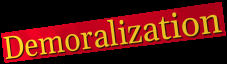
Demoralization